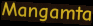
Mangamta